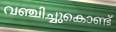
വഞ്ചിച്ചുകൊണ്ട്